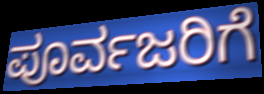
ಪೂರ್ವಜರಿಗೆ